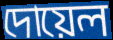
দোয়েল